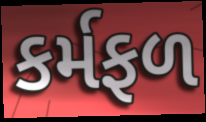
કર્મફળ